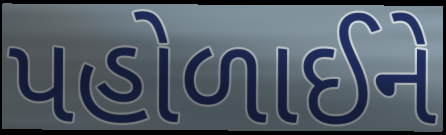
પહોળાઈને